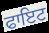
ਫਾਇਟ